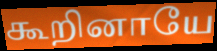
கூறினாயே